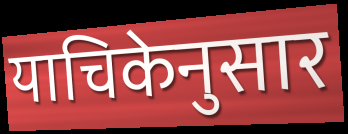
याचिकेनुसार